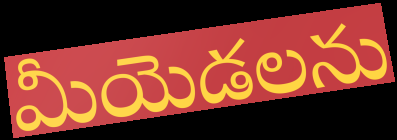
మీయెడలను